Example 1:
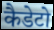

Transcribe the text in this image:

कैडेटो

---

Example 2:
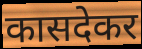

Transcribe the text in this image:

कासदेकर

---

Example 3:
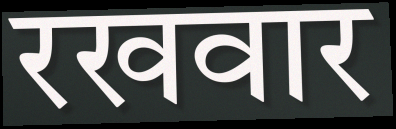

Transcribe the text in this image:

रखवार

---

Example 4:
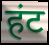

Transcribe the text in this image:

हंट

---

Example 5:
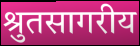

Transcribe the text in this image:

श्रुतसागरीय